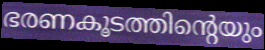
ഭരണകൂടത്തിന്റെയും